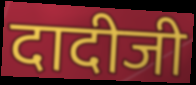
दादीजी